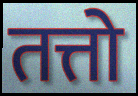
तत्तो